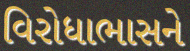
વિરોધાભાસને